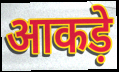
आकड़े